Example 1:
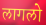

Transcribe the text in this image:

लागलो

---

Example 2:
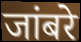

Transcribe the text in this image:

जांबरे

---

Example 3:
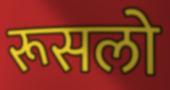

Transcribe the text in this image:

रूसलो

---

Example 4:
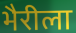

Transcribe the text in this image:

भैरीला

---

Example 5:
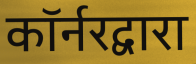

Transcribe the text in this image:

कॉर्नरद्वारा